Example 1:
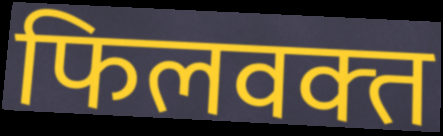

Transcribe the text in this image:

फिलवक्‍त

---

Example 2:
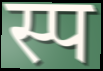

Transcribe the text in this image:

स्प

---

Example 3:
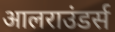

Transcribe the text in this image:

आलराउंडर्स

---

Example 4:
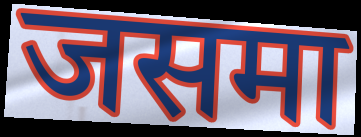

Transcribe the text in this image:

जसमा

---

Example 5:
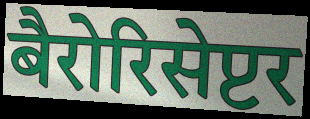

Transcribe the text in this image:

बैरोरिसेप्टर